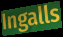
Ingalls